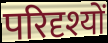
परिदृश्यों